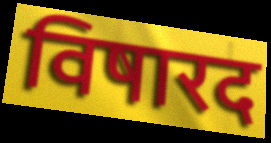
विषारद